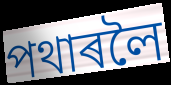
পথাৰলৈ